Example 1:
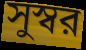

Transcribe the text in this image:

সুস্বর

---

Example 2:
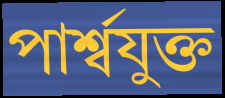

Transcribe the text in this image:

পার্শ্বযুক্ত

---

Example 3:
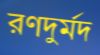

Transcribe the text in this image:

রণদুর্মদ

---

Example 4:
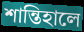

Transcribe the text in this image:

শান্তিহালে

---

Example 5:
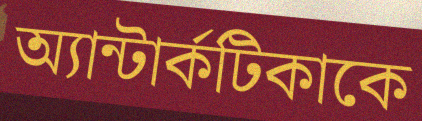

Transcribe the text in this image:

অ্যান্টার্কটিকাকে